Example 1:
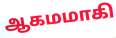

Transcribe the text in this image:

ஆகமமாகி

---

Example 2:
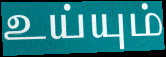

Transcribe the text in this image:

உய்யும்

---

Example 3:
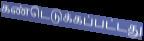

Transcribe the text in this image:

கண்டெடுக்கப்பட்டது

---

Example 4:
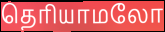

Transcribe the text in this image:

தெரியாமலோ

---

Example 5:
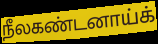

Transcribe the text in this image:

நீலகண்டனாய்க்